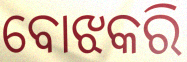
ବୋଝକରି